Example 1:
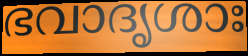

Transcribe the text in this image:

ഭവാദൃശാഃ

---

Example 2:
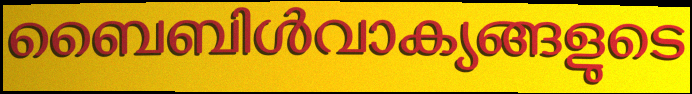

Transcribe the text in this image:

ബൈബിൾവാക്യങ്ങളുടെ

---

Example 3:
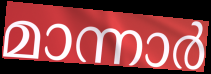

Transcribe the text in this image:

മാന്നാർ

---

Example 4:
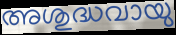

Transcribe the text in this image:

അശുദ്ധവായു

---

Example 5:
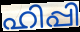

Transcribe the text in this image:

ഹിപ്പി